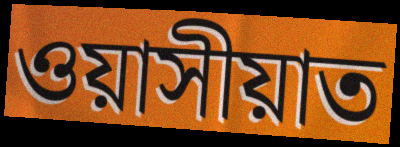
ওয়াসীয়াত